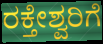
ರಕ್ತೇಶ್ವರಿಗೆ